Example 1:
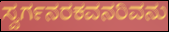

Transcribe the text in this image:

ಸ್ವರ್ಗನರಕವನರಿವನು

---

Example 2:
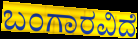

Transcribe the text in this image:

ಬಂಗಾರವಿದೆ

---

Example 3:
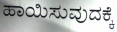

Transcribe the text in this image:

ಹಾಯಿಸುವುದಕ್ಕೆ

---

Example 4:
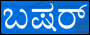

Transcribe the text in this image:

ಬಷರ್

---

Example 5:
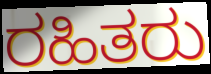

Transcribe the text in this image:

ರಹಿತರು